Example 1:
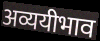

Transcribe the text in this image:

अव्ययीभाव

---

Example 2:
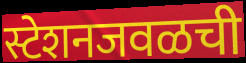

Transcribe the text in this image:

स्टेशनजवळची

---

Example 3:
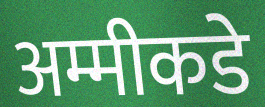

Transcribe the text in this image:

अम्मीकडे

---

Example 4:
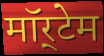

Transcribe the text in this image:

मॉर्टेम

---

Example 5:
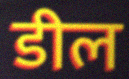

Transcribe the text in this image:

डील